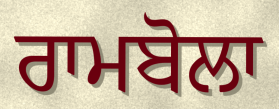
ਰਾਮਬੋਲਾ